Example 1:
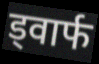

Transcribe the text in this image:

ड्वार्फ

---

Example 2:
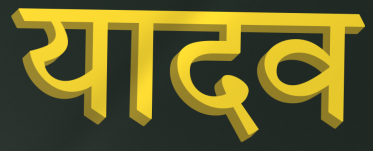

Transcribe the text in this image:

यादव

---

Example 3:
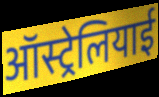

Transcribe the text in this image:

ऑस्ट्रेलियाई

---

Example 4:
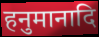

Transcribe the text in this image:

हनुमानादि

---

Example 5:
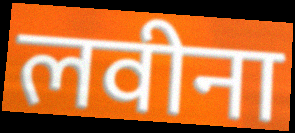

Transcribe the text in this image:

लवीना